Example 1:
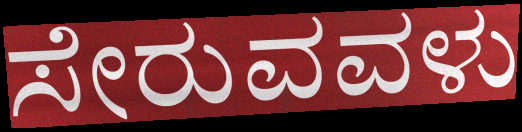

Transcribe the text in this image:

ಸೇರುವವಳು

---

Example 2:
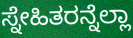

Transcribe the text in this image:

ಸ್ನೇಹಿತರನ್ನೆಲ್ಲಾ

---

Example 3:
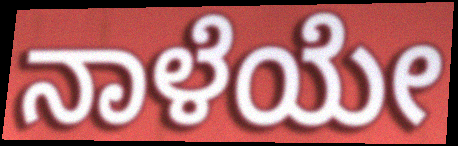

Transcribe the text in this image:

ನಾಳೆಯೇ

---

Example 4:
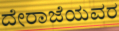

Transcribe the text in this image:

ದೇರಾಜೆಯವರ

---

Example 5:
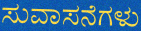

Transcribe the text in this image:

ಸುವಾಸನೆಗಳು